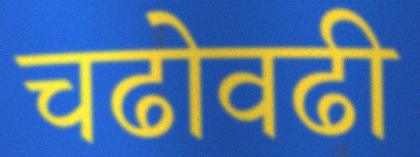
चढोवढी